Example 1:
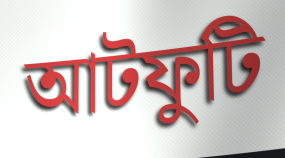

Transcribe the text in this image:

আটফুটি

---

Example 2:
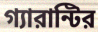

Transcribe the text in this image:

গ্যারান্টির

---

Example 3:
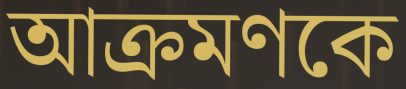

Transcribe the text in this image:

আক্রমণকে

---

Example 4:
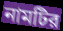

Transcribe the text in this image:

নামটির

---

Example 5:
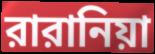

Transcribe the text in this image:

রারানিয়া